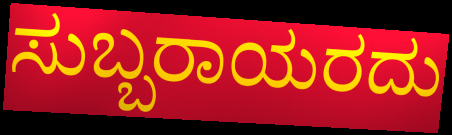
ಸುಬ್ಬರಾಯರದು